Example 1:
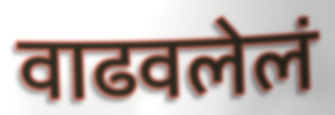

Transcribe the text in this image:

वाढवलेलं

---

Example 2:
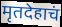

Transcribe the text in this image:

मृतदेहाचं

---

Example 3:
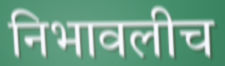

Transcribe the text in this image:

निभावलीच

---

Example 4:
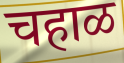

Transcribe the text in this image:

चहाळ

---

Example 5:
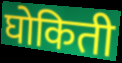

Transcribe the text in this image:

घोकिती